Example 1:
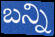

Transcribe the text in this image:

బన్ని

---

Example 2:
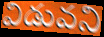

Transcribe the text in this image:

విడువని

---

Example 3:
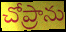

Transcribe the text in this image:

చోప్రాను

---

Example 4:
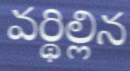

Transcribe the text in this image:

వర్థిల్లిన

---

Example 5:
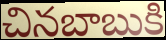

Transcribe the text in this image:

చినబాబుకి